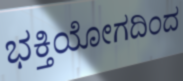
ಭಕ್ತಿಯೋಗದಿಂದ